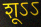
शूऽऽ